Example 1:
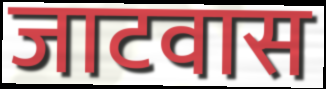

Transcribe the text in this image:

जाटवास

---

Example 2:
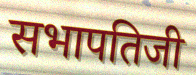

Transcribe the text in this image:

सभापतिजी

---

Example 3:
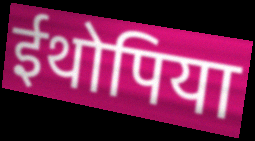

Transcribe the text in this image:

ईथोपिया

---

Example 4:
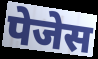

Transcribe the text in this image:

पेजेस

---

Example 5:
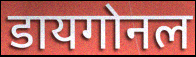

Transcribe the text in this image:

डायगोनल